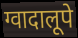
ग्वादालूपे